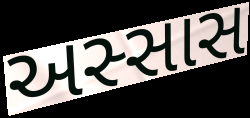
અસ્સાસ